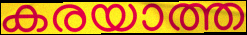
കരയാത്ത